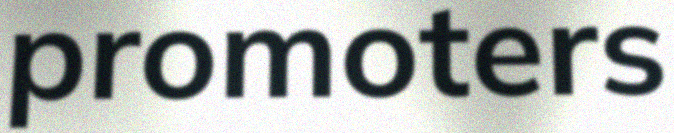
promoters